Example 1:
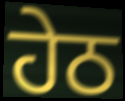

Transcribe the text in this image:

ਹੇਠ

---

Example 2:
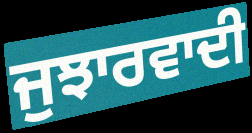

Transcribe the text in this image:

ਜੁਝਾਰਵਾਦੀ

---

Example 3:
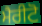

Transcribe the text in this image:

ਮੈਰੀਟੋ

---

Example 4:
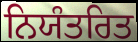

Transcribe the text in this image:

ਨਿਯੰਤਰਿਤ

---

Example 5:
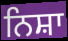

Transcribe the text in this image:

ਨਿਸ਼ਾ